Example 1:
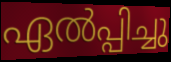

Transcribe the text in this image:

ഏൽപ്പിച്ചു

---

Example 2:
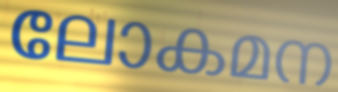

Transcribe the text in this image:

ലോകമന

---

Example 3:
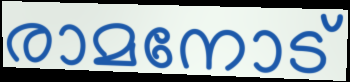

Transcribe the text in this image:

രാമനോട്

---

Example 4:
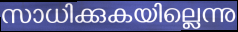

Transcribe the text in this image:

സാധിക്കുകയില്ലെന്നു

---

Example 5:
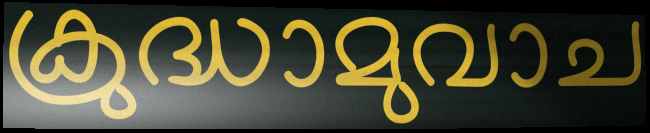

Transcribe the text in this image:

ക്രുദ്ധാമുവാച